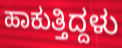
ಹಾಕುತ್ತಿದ್ದಳು